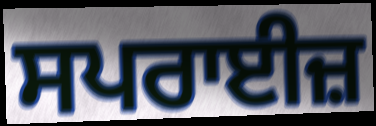
ਸਪਰਾਈਜ਼